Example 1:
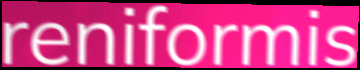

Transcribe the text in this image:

reniformis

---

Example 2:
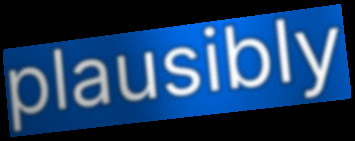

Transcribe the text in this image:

plausibly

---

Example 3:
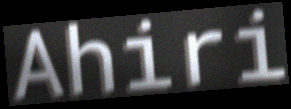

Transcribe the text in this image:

Ahiri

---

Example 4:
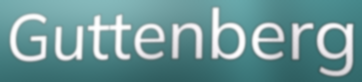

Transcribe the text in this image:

Guttenberg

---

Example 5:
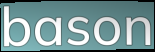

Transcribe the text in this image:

bason